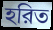
হরিত